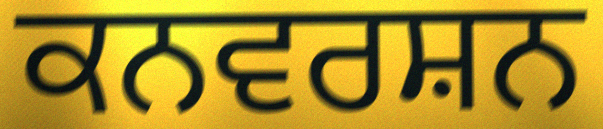
ਕਨਵਰਸ਼ਨ